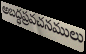
అబద్ధప్రవచనములు